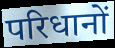
परिधानों